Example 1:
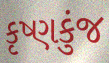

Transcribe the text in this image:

કૃષ્ણકુંજ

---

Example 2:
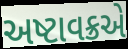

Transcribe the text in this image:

અષ્ટાવક્રએ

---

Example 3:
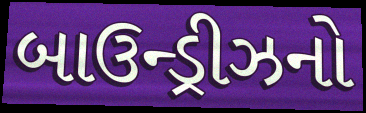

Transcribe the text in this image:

બાઉન્ડ્રીઝનો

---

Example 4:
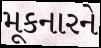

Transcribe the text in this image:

મૂકનારને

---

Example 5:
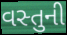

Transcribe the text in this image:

વસ્તુની